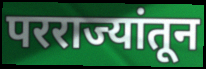
परराज्यांतून